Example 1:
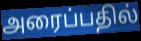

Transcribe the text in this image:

அரைப்பதில்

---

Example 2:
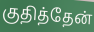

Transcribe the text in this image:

குதித்தேன்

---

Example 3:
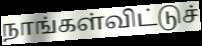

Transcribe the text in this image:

நாங்கள்விட்டுச்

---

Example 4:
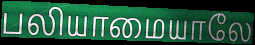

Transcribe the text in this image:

பலியாமையாலே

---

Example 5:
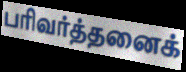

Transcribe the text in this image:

பரிவர்த்தனைக்